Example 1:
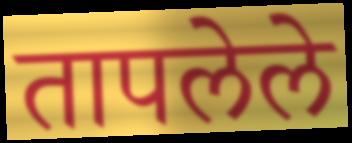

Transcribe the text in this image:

तापलेले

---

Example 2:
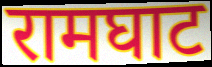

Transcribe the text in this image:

रामघाट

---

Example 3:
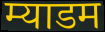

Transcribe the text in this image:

म्याडम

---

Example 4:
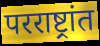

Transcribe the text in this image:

परराष्ट्रांत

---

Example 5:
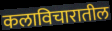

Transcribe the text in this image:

कलाविचारातील